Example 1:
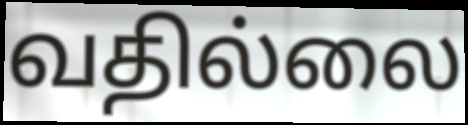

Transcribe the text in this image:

வதில்லை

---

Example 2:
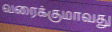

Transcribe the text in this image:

வரைக்குமாவது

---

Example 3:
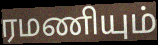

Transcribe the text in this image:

ரமணியும்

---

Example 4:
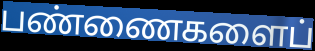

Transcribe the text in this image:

பண்ணைகளைப்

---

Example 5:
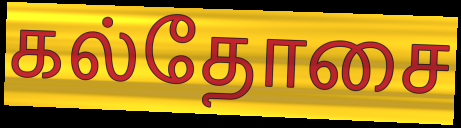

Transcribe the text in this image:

கல்தோசை